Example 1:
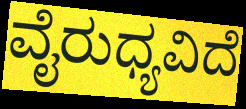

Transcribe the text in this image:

ವೈರುಧ್ಯವಿದೆ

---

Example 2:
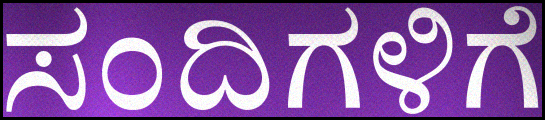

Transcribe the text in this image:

ಸಂದಿಗಳಿಗೆ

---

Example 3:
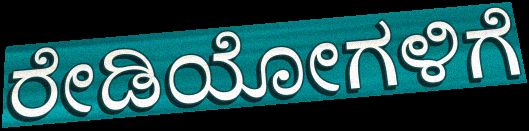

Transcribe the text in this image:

ರೇಡಿಯೋಗಳಿಗೆ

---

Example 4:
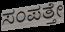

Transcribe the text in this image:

ಸಂಪತ್ತೇ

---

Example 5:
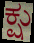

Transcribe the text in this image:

ಕ್ಷು